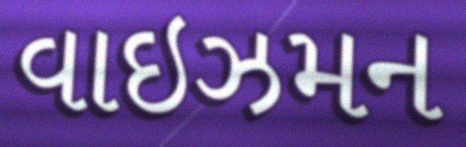
વાઇઝમન